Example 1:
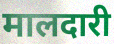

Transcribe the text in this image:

मालदारी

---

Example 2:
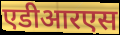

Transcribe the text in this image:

एडीआरएस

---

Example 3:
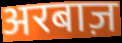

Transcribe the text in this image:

अरबाज़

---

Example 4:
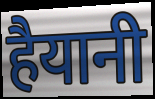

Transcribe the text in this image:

हैयानी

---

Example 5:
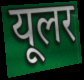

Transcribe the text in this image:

यूलर